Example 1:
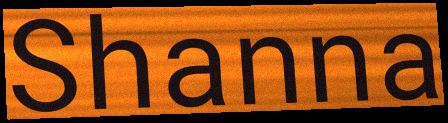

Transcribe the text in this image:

Shanna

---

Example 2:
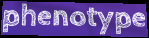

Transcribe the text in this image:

phenotype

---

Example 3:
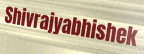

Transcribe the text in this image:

Shivrajyabhishek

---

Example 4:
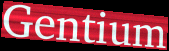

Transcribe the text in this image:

Gentium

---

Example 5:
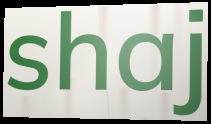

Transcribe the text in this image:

shaj